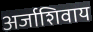
अर्जाशिवाय